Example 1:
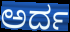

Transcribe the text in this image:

ಅರ್ದ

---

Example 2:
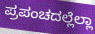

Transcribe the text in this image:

ಪ್ರಪಂಚದಲ್ಲೆಲ್ಲಾ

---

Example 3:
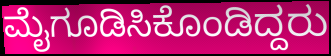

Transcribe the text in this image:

ಮೈಗೂಡಿಸಿಕೊಂಡಿದ್ದರು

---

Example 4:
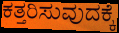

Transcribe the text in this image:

ಕತ್ತರಿಸುವುದಕ್ಕೆ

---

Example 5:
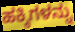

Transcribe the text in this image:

ಹಕ್ಕಿಗಳನ್ನು